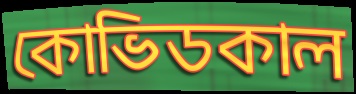
কোভিডকাল